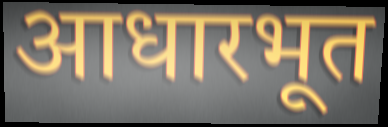
आधारभूत